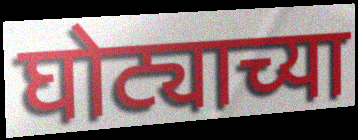
घोट्याच्या